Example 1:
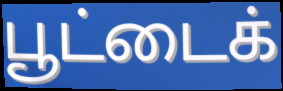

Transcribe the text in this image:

பூட்டைக்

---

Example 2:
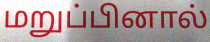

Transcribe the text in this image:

மறுப்பினால்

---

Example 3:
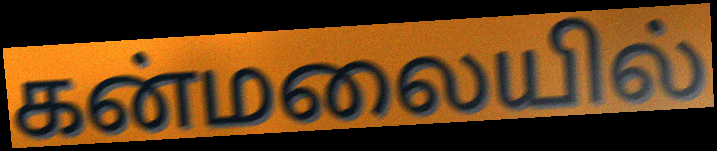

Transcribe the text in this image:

கன்மலையில்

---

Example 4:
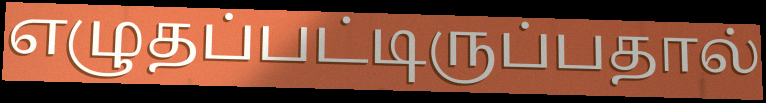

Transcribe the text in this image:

எழுதப்பட்டிருப்பதால்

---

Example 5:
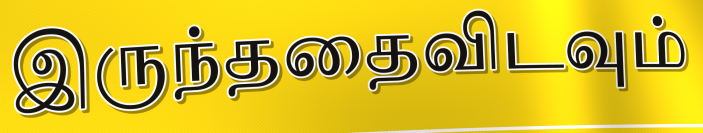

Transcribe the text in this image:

இருந்ததைவிடவும்